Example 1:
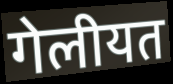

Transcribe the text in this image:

गेलीयत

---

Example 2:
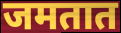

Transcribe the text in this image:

जमतात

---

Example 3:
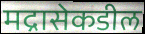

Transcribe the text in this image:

मद्रासेकडील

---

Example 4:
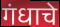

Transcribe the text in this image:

गंधाचे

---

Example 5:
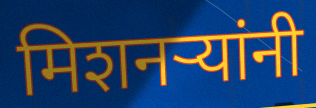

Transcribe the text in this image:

मिशनर्‍यांनी